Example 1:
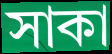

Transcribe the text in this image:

সাকা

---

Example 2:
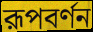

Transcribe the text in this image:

রূপবর্ণন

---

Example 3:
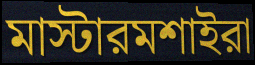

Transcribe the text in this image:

মাস্টারমশাইরা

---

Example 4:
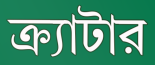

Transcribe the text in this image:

ক্র্যাটার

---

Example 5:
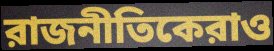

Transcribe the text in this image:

রাজনীতিকেরাও